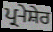
ਪ੍ਰ੍ਮੇਸ਼ੇਰ